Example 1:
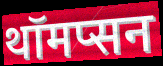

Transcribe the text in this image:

थॉमप्सन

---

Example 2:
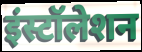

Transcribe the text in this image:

इंस्टॉलेशन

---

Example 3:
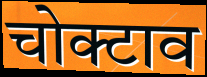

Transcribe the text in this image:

चोक्टाव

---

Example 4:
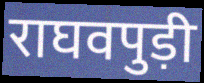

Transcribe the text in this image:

राघवपुड़ी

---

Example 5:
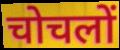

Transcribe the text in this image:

चोचलों